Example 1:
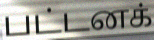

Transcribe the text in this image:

பட்டனக்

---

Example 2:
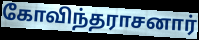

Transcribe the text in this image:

கோவிந்தராசனார்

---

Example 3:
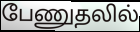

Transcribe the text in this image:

பேணுதலில்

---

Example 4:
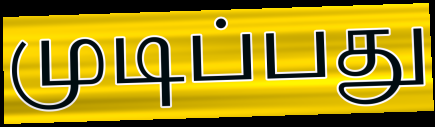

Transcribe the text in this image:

முடிப்பது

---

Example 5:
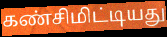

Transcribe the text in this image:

கண்சிமிட்டியது